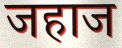
जहाज